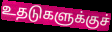
உதடுகளுக்குச்